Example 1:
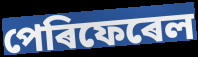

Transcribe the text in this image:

পেৰিফেৰেল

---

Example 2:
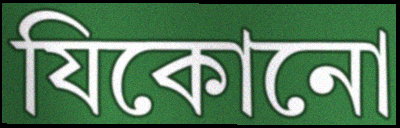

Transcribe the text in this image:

যিকোনো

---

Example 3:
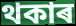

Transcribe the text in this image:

থকাৰ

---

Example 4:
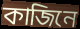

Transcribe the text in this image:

কাজিনে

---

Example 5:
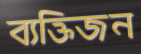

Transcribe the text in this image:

ব্যক্তিজন